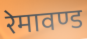
रेमावण्ड